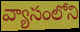
వ్యాసంలోని